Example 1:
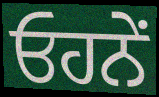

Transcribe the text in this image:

ਓਹਨੇੰ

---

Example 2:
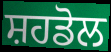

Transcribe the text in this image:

ਸ਼ਹਡੋਲ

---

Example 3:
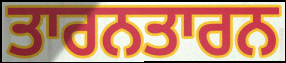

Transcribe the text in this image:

ਤਾਰਨਤਾਰਨ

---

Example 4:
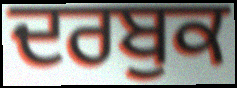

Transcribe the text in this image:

ਦਰਬੁਕ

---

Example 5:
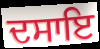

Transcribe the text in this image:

ਦਸਾਇ